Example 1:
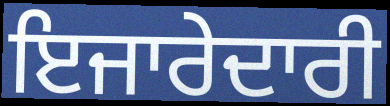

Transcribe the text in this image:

ਇਜਾਰੇਦਾਰੀ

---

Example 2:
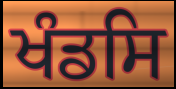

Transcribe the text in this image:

ਖੰਡਸਿ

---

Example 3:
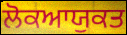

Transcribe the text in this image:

ਲੋਕਆਯੁਕਤ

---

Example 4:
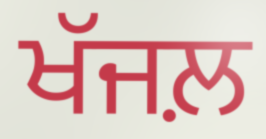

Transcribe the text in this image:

ਖੱਜਲ਼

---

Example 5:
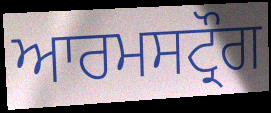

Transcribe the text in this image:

ਆਰਮਸਟ੍ਰੌਗ